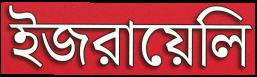
ইজরায়েলি